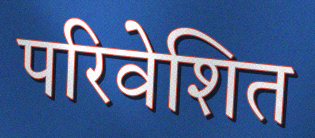
परिवेशित